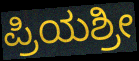
ಪ್ರಿಯಶ್ರೀ